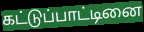
கட்டுப்பாட்டினை